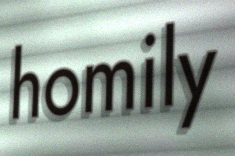
homily